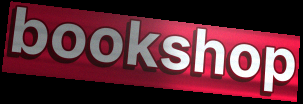
bookshop